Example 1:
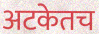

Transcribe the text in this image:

अटकेतच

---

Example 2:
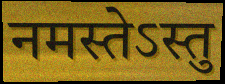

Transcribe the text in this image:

नमस्तेऽस्तु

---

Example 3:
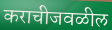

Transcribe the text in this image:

कराचीजवळील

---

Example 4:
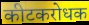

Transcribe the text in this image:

कीटकरोधक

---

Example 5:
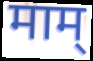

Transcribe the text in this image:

माम्